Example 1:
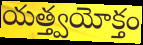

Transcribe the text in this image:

యత్త్వయోక్తం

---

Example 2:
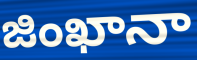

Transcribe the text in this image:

జింఖానా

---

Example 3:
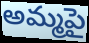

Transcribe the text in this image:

అమ్మపై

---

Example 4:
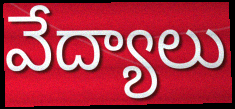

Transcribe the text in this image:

వేద్యాలు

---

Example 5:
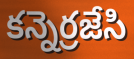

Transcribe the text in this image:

కన్నెర్రజేసి